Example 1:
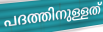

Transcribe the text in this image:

പദത്തിനുള്ളത്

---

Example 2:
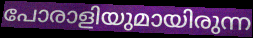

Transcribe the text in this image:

പോരാളിയുമായിരുന്ന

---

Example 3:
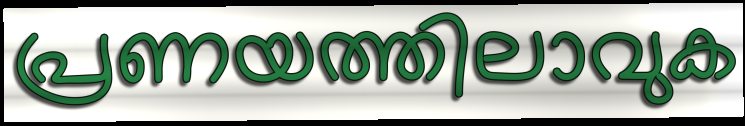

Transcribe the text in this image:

പ്രണയത്തിലാവുക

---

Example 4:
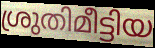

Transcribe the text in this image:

ശ്രുതിമീട്ടിയ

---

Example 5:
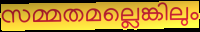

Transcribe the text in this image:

സമ്മതമല്ലെങ്കിലും